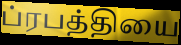
ப்ரபத்தியை